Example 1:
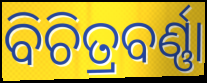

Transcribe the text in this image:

ବିଚିତ୍ରବର୍ଣ୍ଣା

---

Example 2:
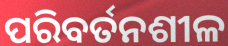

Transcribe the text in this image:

ପରିବର୍ତନଶୀଳ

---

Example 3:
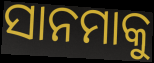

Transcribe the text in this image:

ସାନମାକୁ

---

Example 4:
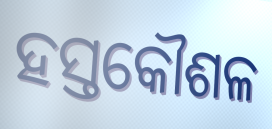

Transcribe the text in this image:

ହସ୍ତକୌଶଳ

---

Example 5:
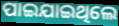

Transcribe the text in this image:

ପାଇଯାଇଥିଲେ